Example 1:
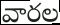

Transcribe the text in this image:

వారల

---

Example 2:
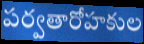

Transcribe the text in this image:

పర్వతారోహకుల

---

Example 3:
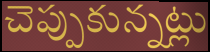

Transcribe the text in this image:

చెప్పుకున్నట్లు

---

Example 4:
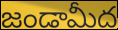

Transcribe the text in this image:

జండామీద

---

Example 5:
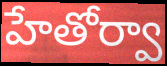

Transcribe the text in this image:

హేతోర్వా